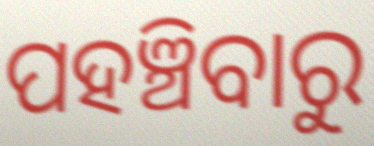
ପହଞ୍ଚିବାରୁ